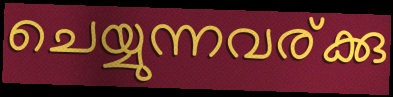
ചെയ്യുന്നവര്ക്കു